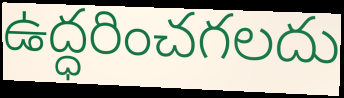
ఉద్ధరించగలదు